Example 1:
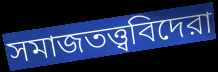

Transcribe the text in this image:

সমাজতত্ত্ববিদেরা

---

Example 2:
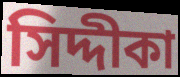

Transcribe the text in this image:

সিদ্দীকা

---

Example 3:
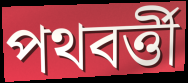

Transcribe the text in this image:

পথবর্ত্তী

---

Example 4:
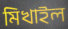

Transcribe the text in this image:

মিখাইল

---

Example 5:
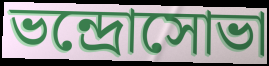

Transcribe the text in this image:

ভন্দ্রোসোভা